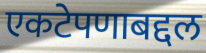
एकटेपणाबद्दल